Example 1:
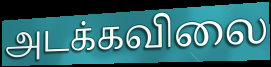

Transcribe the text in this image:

அடக்கவிலை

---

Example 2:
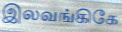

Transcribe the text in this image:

இலவங்கிகே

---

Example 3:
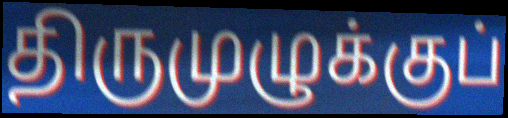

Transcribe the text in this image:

திருமுழுக்குப்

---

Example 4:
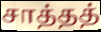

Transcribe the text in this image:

சாத்தத்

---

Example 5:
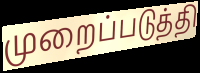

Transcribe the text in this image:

முறைப்படுத்தி